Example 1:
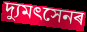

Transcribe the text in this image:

দ্যুমৎসেনৰ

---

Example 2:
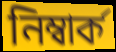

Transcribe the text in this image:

নিম্বাৰ্ক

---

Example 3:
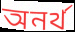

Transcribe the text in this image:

অনৰ্থ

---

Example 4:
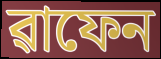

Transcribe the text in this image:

ৱাফেন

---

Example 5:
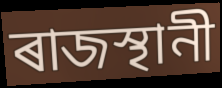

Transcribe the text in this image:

ৰাজস্থানী